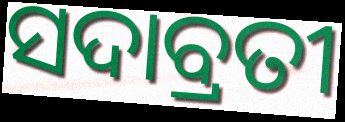
ସଦାବ୍ରତୀ